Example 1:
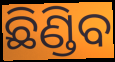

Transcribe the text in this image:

ଛିଣ୍ଡିବ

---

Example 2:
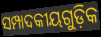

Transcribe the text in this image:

ସମ୍ପାଦକୀୟଗୁଡ଼ିକ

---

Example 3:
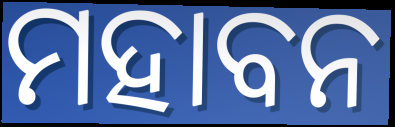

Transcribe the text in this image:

ମହାବନ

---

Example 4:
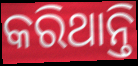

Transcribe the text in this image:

କରିଥାନ୍ତି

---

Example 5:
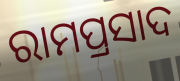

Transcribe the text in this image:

ରାମପ୍ରସାଦ